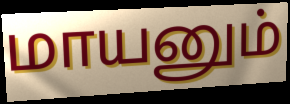
மாயனும்